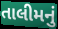
તાલીમનું